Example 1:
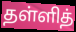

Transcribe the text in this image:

தள்ளித்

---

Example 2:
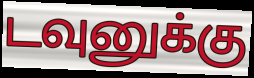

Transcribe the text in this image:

டவுனுக்கு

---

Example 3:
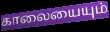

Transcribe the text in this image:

காலையையும்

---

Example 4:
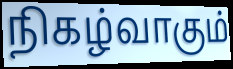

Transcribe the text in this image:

நிகழ்வாகும்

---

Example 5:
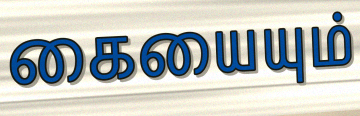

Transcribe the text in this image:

கையையும்